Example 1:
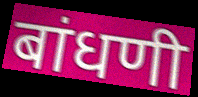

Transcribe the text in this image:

बांधणी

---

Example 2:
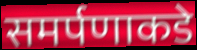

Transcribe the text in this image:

समर्पणाकडे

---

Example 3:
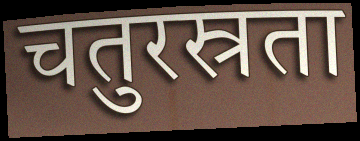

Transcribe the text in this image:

चतुरस्रता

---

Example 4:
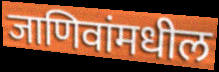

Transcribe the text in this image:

जाणिवांमधील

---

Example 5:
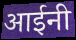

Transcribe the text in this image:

आईनी